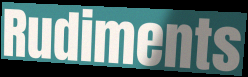
Rudiments